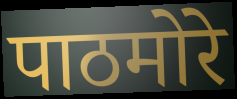
पाठमोरे